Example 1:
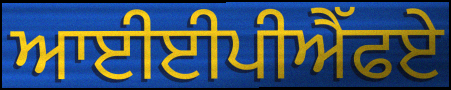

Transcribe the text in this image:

ਆਈਈਪੀਐੱਫਏ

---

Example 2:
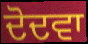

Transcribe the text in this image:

ਦੋਦਵਾ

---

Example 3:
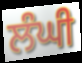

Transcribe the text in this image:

ਲੰਘੀ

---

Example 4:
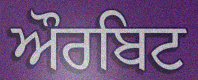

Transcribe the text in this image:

ਔਰਬਿਟ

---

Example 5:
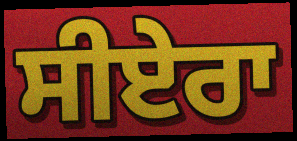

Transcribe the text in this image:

ਸੀਏਰਾ